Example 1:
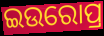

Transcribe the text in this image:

ଇଉରୋପ୍ର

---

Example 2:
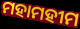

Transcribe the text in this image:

ମହାମହୀମ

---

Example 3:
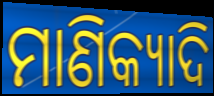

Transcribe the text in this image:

ମାଣିକ୍ୟାଦି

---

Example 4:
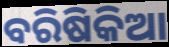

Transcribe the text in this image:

ବରିଷିକିଆ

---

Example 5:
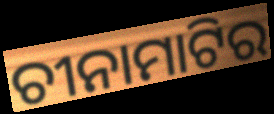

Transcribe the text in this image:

ଚୀନାମାଟିର